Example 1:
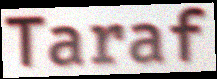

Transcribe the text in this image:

Taraf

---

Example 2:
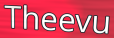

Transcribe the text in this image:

Theevu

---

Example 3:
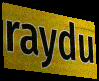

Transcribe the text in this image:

raydu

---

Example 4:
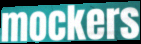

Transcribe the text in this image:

mockers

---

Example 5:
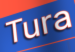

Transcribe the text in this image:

Tura